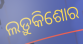
ଲଡ଼ୁକିଶୋର